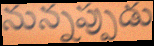
నున్నప్పుడు